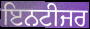
ਇਨਟੀਜਰ